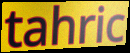
tahric